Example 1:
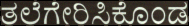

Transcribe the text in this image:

ತಲೆಗೇರಿಸಿಕೊಂಡ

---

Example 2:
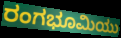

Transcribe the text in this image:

ರಂಗಭೂಮಿಯು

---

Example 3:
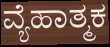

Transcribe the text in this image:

ವ್ಯೆಹಾತ್ಮಕ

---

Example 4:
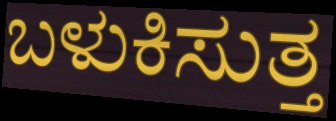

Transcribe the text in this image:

ಬಳುಕಿಸುತ್ತ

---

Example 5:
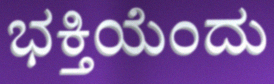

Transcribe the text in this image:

ಭಕ್ತಿಯೆಂದು